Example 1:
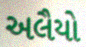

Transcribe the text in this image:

અલૈયો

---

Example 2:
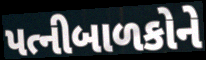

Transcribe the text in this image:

પત્નીબાળકોને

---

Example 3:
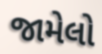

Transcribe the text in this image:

જામેલો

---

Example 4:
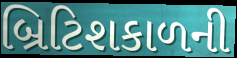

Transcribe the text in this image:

બ્રિટિશકાળની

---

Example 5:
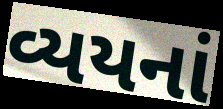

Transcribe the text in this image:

વ્યયનાં